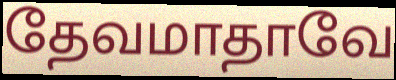
தேவமாதாவே